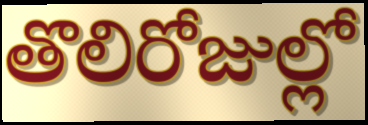
తొలిరోజుల్లో